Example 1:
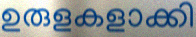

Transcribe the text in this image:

ഉരുളകളാക്കി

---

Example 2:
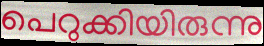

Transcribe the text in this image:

പെറുക്കിയിരുന്നു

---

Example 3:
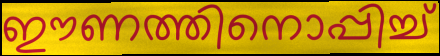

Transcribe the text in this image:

ഈണത്തിനൊപ്പിച്ച്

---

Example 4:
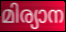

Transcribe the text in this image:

മിര്യാന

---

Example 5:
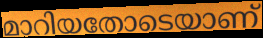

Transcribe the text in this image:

മാറിയതോടെയാണ്